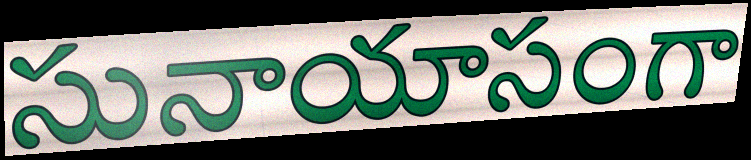
సునాయాసంగా